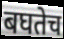
बघतेच